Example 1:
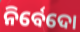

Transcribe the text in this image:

ନିର୍ବେଦୋ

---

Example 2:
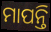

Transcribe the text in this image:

ମାପନ୍ତି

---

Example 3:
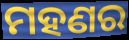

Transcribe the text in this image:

ମହଣର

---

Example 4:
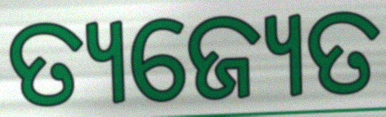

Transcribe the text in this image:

ତ୍ୟଜ୍ୟେତ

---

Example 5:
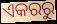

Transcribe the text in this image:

ଏକରରୁ